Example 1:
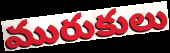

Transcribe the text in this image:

మురుకులు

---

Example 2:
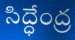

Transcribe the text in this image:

సిద్ధేంద్ర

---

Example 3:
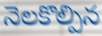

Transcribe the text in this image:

నెలకొల్పిన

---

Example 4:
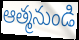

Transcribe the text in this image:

ఆత్మనుండి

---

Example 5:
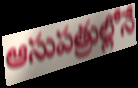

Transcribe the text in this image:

ఆసుపత్రుల్లోనే